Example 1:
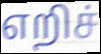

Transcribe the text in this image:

எறிச்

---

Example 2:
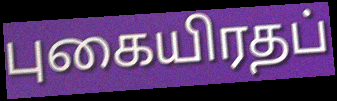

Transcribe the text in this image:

புகையிரதப்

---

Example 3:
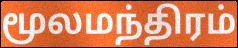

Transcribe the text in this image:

மூலமந்திரம்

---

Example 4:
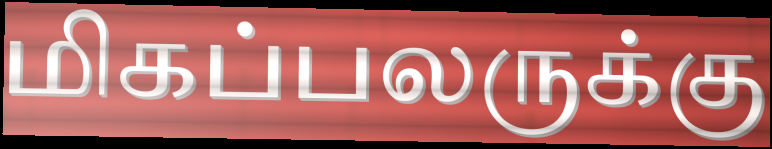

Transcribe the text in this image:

மிகப்பலருக்கு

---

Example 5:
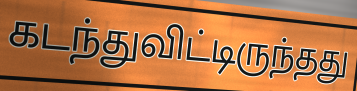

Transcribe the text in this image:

கடந்துவிட்டிருந்தது